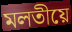
মলতীয়ে